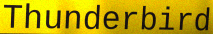
Thunderbird